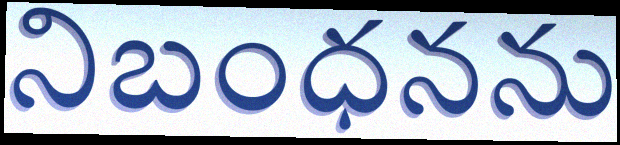
నిబంధనను